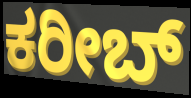
ಕರೀಬ್